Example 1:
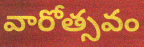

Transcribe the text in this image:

వారోత్సవం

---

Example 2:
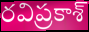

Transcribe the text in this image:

రవిప్రకాశ్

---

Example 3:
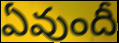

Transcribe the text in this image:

ఏవుందీ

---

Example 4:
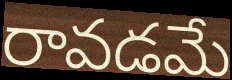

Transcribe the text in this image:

రావడమే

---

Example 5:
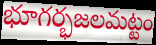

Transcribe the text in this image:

భూగర్భజలమట్టం